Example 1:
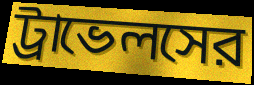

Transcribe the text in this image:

ট্রাভেলসের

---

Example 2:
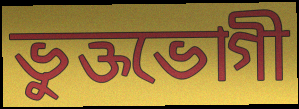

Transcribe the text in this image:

ভুক্তভোগী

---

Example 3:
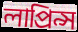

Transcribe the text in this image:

লাপ্রিন্স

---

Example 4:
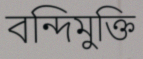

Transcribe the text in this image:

বন্দিমুক্তি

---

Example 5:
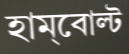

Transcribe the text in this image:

হাম্‌বোল্ট